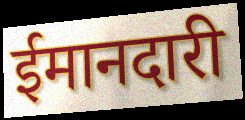
ईमानदारी